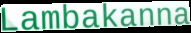
Lambakanna